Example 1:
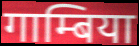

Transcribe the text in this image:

गाम्बिया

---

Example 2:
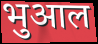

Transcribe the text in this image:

भुआल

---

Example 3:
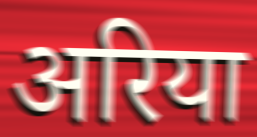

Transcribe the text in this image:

अरिया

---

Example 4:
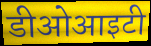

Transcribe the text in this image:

डीओआइटी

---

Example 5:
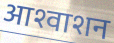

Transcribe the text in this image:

आश्वाशन